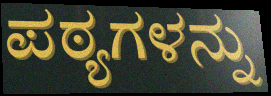
ಪಠ್ಯಗಳನ್ನು